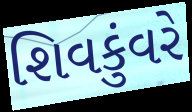
શિવકુંવરે